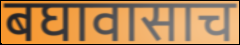
बघावासाच